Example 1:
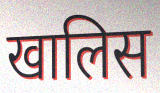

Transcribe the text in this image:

खालिस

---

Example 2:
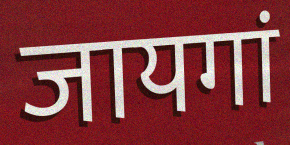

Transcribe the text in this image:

जायगां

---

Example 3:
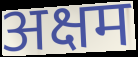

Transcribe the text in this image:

अक्षम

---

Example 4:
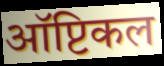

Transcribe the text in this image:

ऑप्टिकल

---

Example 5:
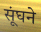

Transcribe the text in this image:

सूंघने